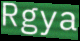
Rgya